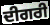
ਦੀਗਰੀ